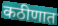
कठीणात